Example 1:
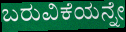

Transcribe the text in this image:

ಬರುವಿಕೆಯನ್ನೇ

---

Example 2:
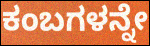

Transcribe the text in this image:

ಕಂಬಗಳನ್ನೇ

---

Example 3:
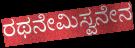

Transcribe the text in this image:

ರಥನೇಮಿಸ್ವನೇನ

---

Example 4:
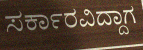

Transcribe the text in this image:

ಸರ್ಕಾರವಿದ್ದಾಗ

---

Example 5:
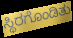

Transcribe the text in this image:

ಸ್ಥಿರಗೊಂಡಿತು